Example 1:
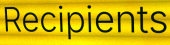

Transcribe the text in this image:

Recipients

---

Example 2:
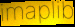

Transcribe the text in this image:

imaplib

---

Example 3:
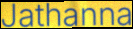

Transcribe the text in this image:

Jathanna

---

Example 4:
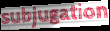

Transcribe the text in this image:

subjugation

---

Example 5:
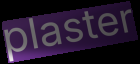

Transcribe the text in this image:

plaster